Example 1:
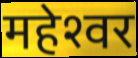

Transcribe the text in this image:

महेश्वर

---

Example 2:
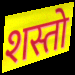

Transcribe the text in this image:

शस्तो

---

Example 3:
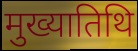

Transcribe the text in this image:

मुख्यातिथि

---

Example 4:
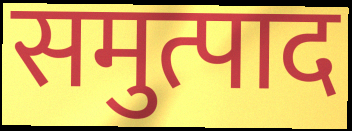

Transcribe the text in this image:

समुत्पाद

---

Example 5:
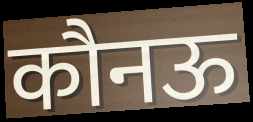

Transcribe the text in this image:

कौनऊ